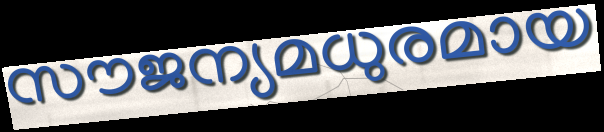
സൗജന്യമധുരമായ